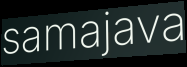
samajava